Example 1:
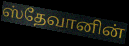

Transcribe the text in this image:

ஸ்தேவானின்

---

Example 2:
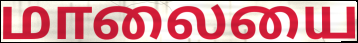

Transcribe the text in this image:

மாலையை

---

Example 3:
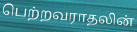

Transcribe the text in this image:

பெற்றவராதலின்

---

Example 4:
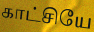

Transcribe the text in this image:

காட்சியே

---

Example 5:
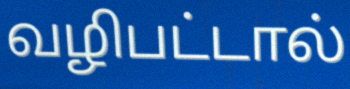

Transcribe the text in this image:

வழிபட்டால்